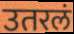
उतरलं